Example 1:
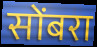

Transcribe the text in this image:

सोंबरा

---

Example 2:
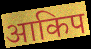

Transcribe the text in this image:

आकिप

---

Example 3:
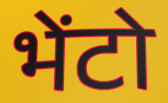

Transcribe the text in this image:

भेंटो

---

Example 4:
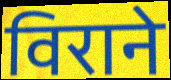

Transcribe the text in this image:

विराने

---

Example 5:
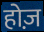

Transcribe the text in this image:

होज़